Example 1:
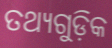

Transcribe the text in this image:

ତଥ୍ୟଗୁଡ଼ିକ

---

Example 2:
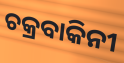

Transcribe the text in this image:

ଚକ୍ରବାକିନୀ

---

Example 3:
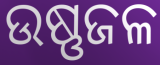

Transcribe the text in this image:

ଉଷ୍ଣଜଳ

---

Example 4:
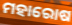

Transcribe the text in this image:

ମହାରୋଷ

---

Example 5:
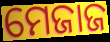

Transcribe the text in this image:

ମେଜାଜ